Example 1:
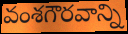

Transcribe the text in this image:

వంశగౌరవాన్ని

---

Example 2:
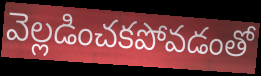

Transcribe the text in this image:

వెల్లడించకపోవడంతో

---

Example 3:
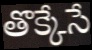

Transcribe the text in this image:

తొక్కేసే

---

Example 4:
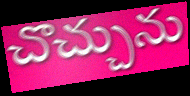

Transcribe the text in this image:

చొచ్చును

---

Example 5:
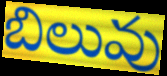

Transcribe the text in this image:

బిలువు